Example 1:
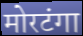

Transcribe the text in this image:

मोरटंगा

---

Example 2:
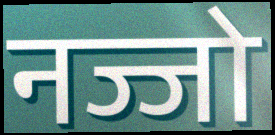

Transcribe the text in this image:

नज्जो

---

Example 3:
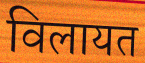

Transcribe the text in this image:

विलायत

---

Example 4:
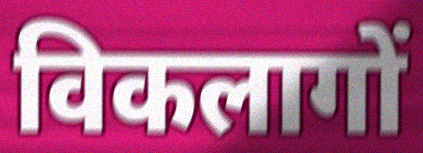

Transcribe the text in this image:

विकलागों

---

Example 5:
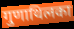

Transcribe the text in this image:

गुणाथिलका